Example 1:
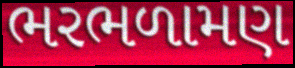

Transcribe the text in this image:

ભરભળામણ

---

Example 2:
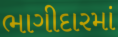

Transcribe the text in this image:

ભાગીદારમાં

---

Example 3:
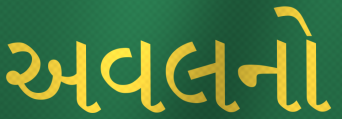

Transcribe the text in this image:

અવલનો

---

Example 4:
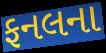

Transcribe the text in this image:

ફનલના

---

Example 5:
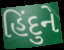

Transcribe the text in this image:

હિંદુને